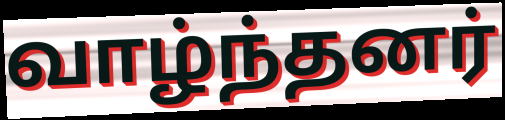
வாழ்ந்தனர்